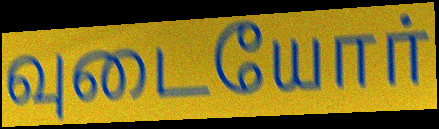
வுடையோர்